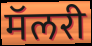
मॅलरी